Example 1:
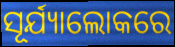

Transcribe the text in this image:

ସୂର୍ଯ୍ୟାଲୋକରେ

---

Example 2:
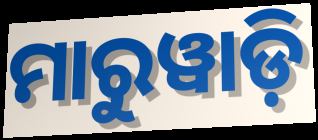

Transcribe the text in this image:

ମାରୁୱାଡ଼ି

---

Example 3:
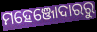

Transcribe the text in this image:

ମହେଞ୍ଜୋଦାରରୁ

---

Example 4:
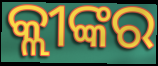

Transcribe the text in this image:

କ୍ଲୀଙ୍କର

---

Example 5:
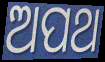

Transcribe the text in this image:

ଅପଥ